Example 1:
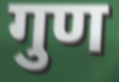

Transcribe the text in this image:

गुण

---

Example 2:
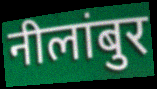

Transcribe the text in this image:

नीलांबुर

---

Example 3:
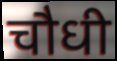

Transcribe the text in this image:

चौधी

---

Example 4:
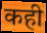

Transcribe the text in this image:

कही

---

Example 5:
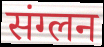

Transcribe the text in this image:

संग्लन